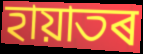
হায়াতৰ